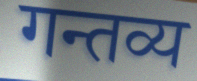
गन्तव्य